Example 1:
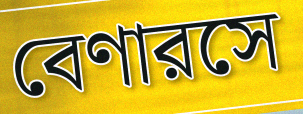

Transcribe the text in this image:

বেণারসে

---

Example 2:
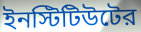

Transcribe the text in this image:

ইনস্টিটিউটের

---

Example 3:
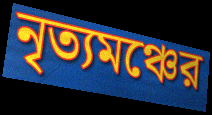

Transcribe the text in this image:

নৃত্যমঞ্চের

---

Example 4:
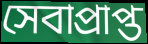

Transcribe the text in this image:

সেবাপ্রাপ্ত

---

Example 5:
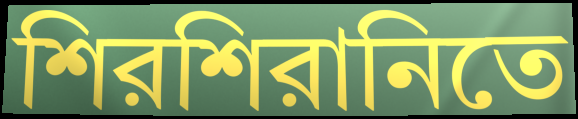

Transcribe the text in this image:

শিরশিরানিতে